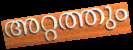
അറ്റത്തും